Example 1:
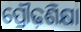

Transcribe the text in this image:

ପ୍ରୌଢ଼ଶିକ୍ଷା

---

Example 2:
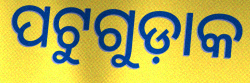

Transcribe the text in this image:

ପଟୁଗୁଡ଼ାକ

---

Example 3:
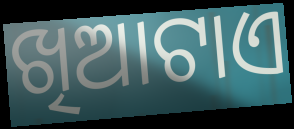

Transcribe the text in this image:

ଖିଆଟାଏ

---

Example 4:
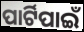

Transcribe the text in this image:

ପାର୍ଟିପାଇଁ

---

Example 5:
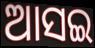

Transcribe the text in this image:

ଆସଇ